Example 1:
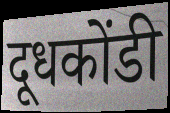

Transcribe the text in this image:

दूधकोंडी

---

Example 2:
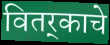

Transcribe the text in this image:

वितर्काचे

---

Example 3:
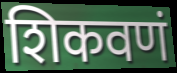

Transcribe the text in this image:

शिकवणं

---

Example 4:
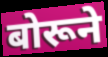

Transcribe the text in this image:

बोरूने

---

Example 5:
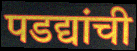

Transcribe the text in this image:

पडद्यांची